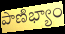
పాణిభ్యాం